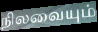
நிலவையும்